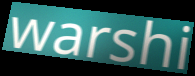
warshi